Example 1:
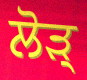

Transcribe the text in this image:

ਲੋੜ੍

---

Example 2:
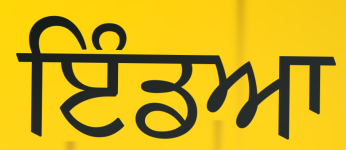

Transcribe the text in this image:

ਇੰਡਆ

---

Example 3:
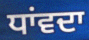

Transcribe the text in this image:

ਧਾਂਵਦਾ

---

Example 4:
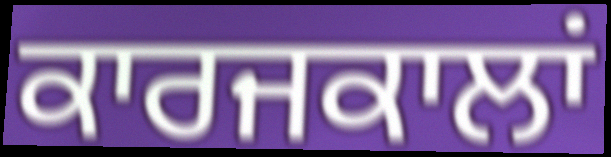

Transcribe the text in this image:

ਕਾਰਜਕਾਲਾਂ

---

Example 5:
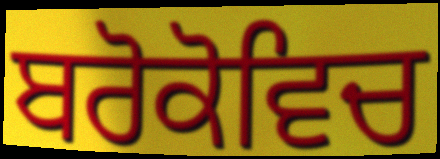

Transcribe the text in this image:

ਬਰੋਕੋਵਿਚ